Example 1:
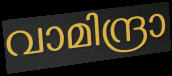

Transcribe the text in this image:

വാമിന്ദ്രാ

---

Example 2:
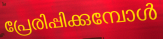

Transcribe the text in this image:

പ്രേരിപ്പിക്കുമ്പോൾ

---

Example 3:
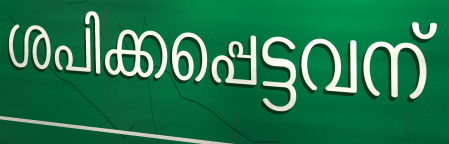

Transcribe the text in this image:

ശപിക്കപ്പെട്ടവന്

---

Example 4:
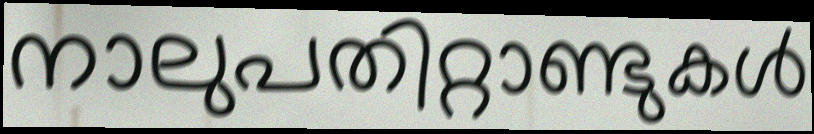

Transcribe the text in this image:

നാലുപതിറ്റാണ്ടുകൾ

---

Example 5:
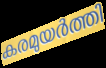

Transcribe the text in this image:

കരമുയർത്തി